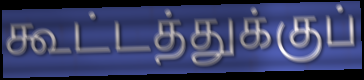
கூட்டத்துக்குப்